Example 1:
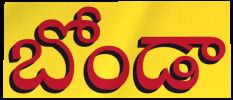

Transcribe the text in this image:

బోండా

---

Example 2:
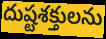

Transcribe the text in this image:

దుష్టశక్తులను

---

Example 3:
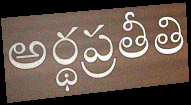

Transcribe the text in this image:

అర్థప్రతీతి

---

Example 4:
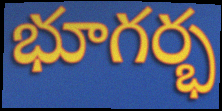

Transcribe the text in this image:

భూగర్భ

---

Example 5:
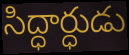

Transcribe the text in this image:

సిద్ధార్ధుడు